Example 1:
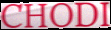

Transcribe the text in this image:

CHODI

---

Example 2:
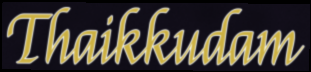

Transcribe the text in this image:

Thaikkudam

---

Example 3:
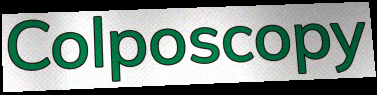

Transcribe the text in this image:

Colposcopy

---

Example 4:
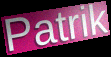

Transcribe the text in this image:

Patrik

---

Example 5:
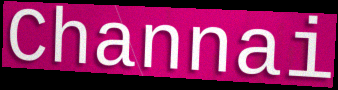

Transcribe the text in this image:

Channai